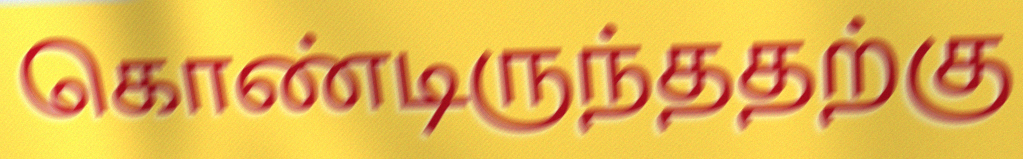
கொண்டிருந்ததற்கு